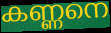
കണ്ണനെ